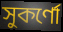
সুকৰ্ণো